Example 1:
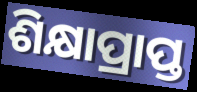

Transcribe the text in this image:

ଶିକ୍ଷାପ୍ରାପ୍ତ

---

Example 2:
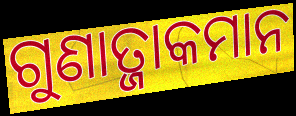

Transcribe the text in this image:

ଗୁଣାତ୍ଜାକମାନ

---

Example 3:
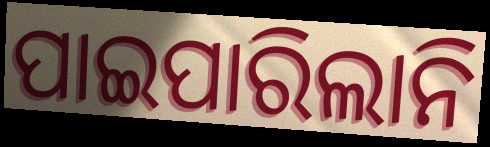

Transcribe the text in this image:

ପାଇପାରିଲାନି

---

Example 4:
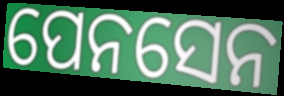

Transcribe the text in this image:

ପେନସେନ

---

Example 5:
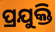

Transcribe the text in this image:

ପ୍ରଯୁକ୍ତି